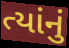
ત્યાંનું